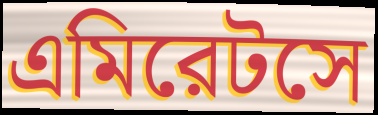
এমিরেটসে